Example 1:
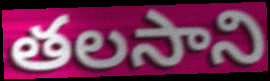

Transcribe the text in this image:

తలసాని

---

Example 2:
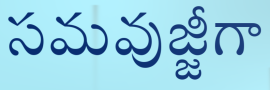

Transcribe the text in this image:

సమవుజ్జీగా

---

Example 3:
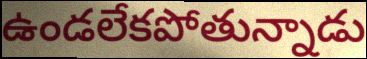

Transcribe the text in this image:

ఉండలేకపోతున్నాడు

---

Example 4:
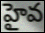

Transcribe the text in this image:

హైవ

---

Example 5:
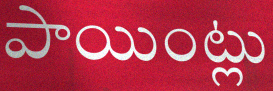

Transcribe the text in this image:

పాయింట్లు